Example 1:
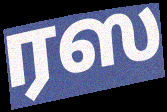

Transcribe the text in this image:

ரஸ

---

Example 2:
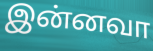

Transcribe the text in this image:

இன்னவா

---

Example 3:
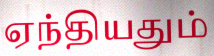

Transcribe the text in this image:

ஏந்தியதும்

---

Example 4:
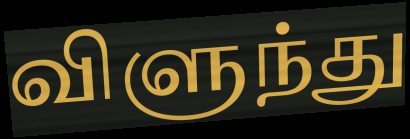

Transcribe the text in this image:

விளுந்து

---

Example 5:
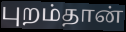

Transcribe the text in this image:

புறம்தான்